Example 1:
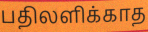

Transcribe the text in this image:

பதிலளிக்காத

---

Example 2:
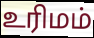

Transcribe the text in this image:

உரிமம்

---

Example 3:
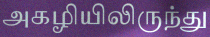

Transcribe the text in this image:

அகழியிலிருந்து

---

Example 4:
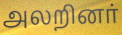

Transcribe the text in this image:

அலறினர்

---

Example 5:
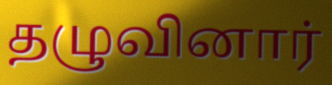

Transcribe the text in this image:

தழுவினார்